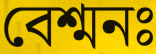
বেশ্মনঃ